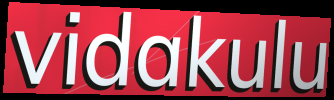
vidakulu